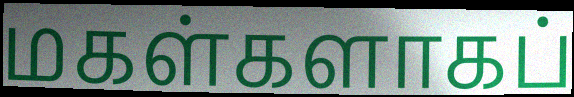
மகள்களாகப்